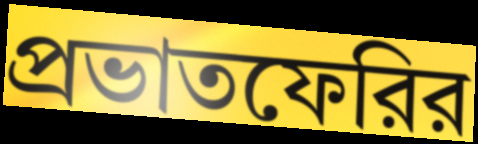
প্রভাতফেরির